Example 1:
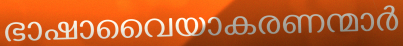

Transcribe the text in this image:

ഭാഷാവൈയാകരണന്മാർ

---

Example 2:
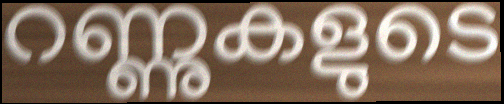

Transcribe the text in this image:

റണ്ണുകളുടെ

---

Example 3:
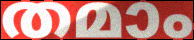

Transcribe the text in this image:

തമാം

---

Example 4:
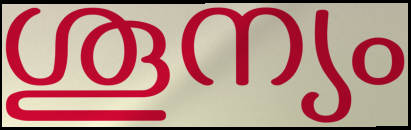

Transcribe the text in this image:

ശൂന്യം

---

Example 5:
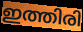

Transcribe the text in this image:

ഇത്തിരി